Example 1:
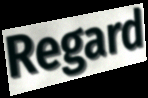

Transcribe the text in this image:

Regard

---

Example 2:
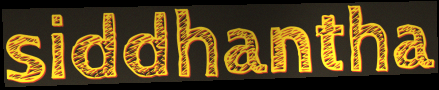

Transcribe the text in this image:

siddhantha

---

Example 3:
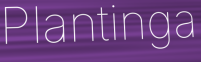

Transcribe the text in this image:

Plantinga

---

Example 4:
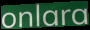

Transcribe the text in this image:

onlara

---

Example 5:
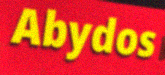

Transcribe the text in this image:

Abydos